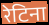
रेटिना